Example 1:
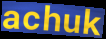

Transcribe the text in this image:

achuk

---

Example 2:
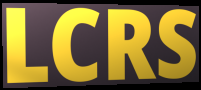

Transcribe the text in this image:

LCRS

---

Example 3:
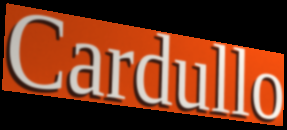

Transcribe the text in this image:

Cardullo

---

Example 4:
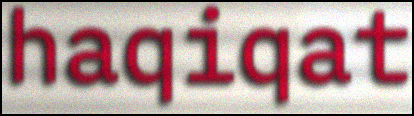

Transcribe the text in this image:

haqiqat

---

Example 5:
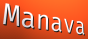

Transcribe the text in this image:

Manava